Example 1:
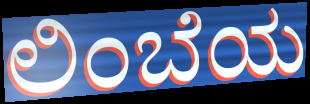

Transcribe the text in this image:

ಲಿಂಬೆಯ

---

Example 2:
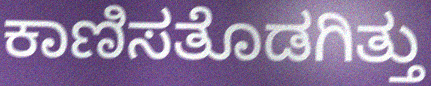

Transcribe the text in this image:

ಕಾಣಿಸತೊಡಗಿತ್ತು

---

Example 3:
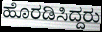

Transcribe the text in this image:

ಹೊರಡಿಸಿದ್ದರು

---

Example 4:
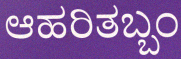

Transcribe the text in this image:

ಆಹರಿತಬ್ಬಂ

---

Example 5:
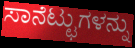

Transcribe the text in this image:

ಸಾನೆಟ್ಟುಗಳನ್ನು